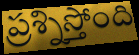
ప్రశ్నిస్తోంది